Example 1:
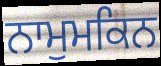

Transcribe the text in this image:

ਨਾਮੁਮਕਿਨ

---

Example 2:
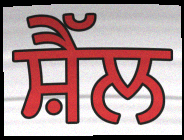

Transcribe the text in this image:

ਸ਼ੈੱਲ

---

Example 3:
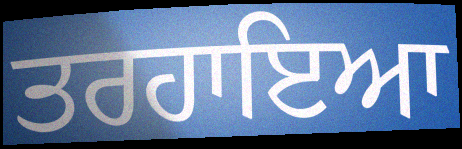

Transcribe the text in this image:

ਤਰਹਾਇਆ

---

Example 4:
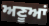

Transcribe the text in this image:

ਅਣੂਆਂ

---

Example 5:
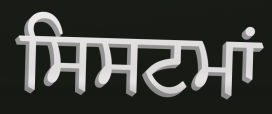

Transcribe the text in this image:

ਸਿਸਟਮਾਂ